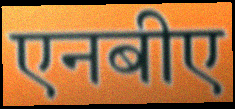
एनबीए